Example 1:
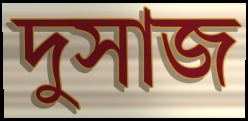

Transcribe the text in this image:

দুসাজ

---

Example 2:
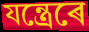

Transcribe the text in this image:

যন্ত্ৰেৰে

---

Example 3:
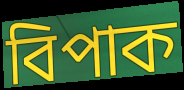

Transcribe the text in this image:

বিপাক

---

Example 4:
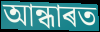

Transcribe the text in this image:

আন্ধাৰত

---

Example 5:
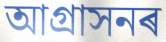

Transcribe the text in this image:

আগ্ৰাসনৰ